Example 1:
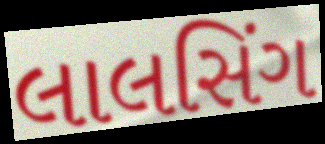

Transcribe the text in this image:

લાલસિંગ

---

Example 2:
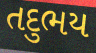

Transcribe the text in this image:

તદુભય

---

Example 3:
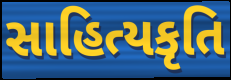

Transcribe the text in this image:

સાહિત્યકૃતિ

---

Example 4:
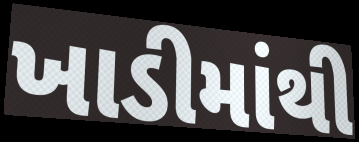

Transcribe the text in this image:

ખાડીમાંથી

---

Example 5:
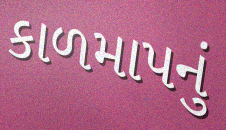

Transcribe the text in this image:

કાળમાપનું